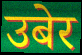
उबेर